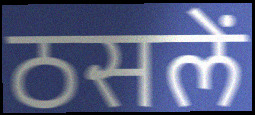
ठसलें